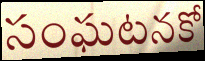
సంఘటనకో